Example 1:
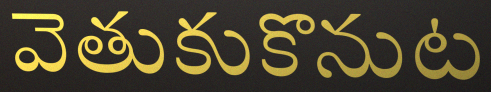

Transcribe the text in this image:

వెతుకుకొనుట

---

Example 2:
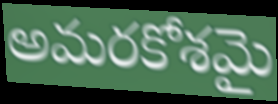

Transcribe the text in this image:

అమరకోశమై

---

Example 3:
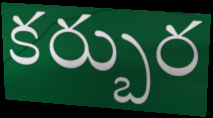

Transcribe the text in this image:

కర్బుర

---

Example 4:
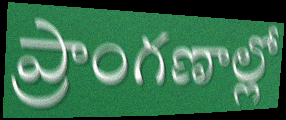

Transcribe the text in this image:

ప్రాంగణాల్లో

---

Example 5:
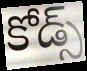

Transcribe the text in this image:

కోడ్స్